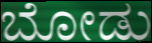
ಬೋಡು